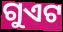
ଗୁଏଟ